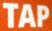
TAP